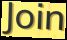
Join